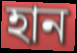
হান